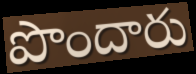
పొందారు